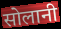
सोलानी